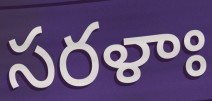
సరళాః